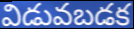
విడువబడక